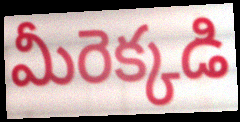
మీరెక్కడి